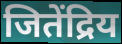
जितेंद्रिय